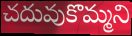
చదువుకొమ్మని